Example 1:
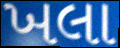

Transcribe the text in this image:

ખલા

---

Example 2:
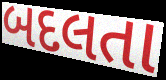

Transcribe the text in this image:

બદલતા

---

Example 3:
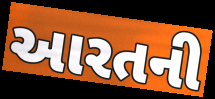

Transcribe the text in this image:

આરતની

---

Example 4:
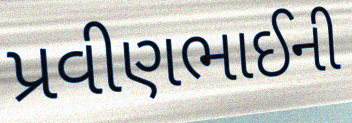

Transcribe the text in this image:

પ્રવીણભાઈની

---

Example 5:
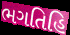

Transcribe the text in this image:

ભગતિહિ